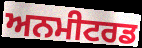
ਅਨਮੀਟਰਡ